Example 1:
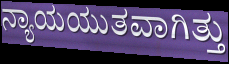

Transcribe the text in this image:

ನ್ಯಾಯಯುತವಾಗಿತ್ತು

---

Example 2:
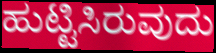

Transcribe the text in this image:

ಹುಟ್ಟಿಸಿರುವುದು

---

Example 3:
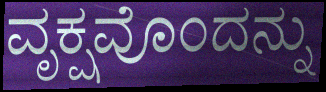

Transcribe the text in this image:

ವೃಕ್ಷವೊಂದನ್ನು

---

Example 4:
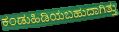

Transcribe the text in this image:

ಕಂಡುಹಿಡಿಯಬಹುದಾಗಿತ್ತು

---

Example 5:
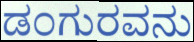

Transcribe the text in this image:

ಡಂಗುರವನು